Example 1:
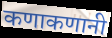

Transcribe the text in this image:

कणाकणानी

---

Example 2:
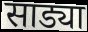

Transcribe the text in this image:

साड्या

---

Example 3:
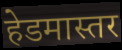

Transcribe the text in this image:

हेडमास्तर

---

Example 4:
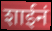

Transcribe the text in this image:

शाईनं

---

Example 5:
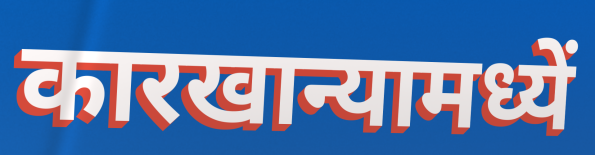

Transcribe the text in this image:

कारखान्यामध्यें